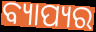
ବ୍ୟାପ୍ୟର